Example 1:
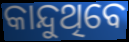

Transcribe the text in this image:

କାନ୍ଦୁଥିବେ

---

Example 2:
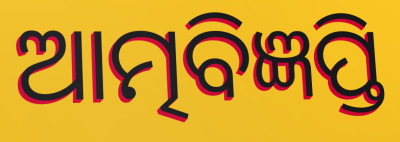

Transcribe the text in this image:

ଆତ୍ମବିଜ୍ଞପ୍ତି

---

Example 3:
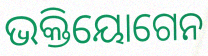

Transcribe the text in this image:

ଭକ୍ତିୟୋଗେନ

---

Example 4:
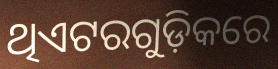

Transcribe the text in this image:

ଥିଏଟରଗୁଡ଼ିକରେ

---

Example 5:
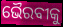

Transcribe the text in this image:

ଭୈରବୀକୁ